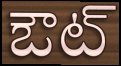
ఔట్